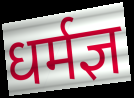
धर्मज्ञ